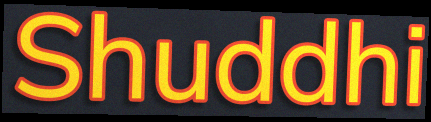
Shuddhi